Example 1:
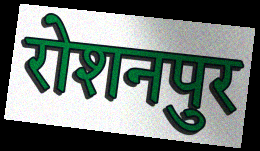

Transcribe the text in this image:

रोशनपुर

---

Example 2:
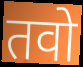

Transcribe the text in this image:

तवो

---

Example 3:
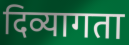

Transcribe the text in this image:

दिव्यागता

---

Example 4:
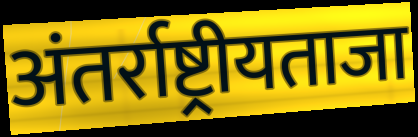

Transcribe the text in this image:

अंतर्राष्ट्रीयताजा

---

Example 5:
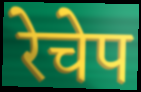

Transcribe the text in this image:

रेचेप